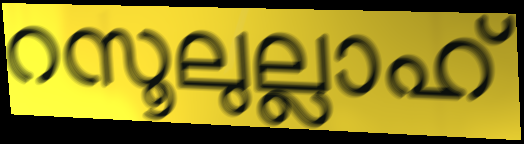
റസൂലുല്ലാഹ്